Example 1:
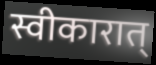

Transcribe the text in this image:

स्वीकारात्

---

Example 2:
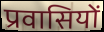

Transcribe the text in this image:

प्रवासियों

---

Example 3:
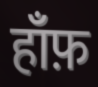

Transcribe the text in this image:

हाँफ़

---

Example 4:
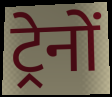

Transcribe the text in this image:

ट्रेनों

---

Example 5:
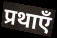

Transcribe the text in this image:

प्रथाएँ